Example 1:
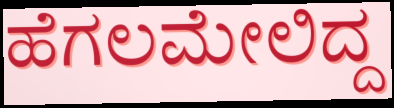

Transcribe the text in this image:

ಹೆಗಲಮೇಲಿದ್ದ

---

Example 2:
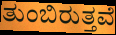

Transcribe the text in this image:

ತುಂಬಿರುತ್ತವೆ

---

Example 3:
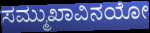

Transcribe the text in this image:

ಸಮ್ಮುಖಾವಿನಯೋ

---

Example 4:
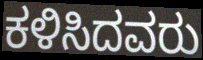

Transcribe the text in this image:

ಕಳಿಸಿದವರು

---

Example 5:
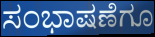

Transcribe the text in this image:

ಸಂಭಾಷಣೆಗೂ